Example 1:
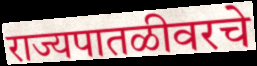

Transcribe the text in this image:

राज्यपातळीवरचे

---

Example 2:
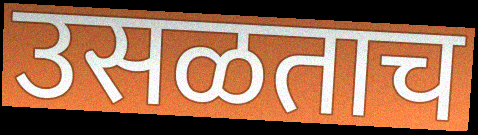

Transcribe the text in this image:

उसळताच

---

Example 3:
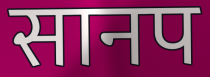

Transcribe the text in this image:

सानप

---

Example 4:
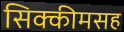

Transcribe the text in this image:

सिक्कीमसह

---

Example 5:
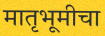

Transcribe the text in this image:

मातृभूमीचा